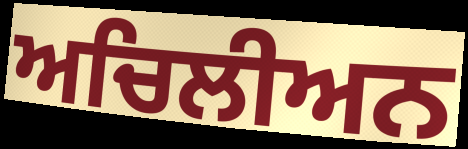
ਅਚਿਲੀਅਨ